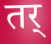
तर्